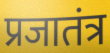
प्रजातंत्र